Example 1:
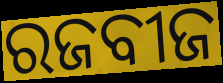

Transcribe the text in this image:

ରଜବୀଜ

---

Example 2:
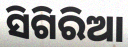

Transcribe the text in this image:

ସିଗିରିଆ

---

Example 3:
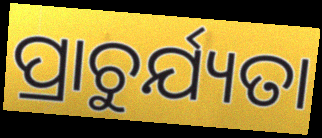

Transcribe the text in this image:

ପ୍ରାଚୁର୍ଯ୍ୟତା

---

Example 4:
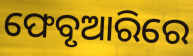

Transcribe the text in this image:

ଫେବୃଆରିରେ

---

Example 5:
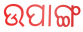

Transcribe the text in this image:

ଉପାଙ୍ଗ